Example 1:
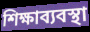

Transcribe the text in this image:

শিক্ষাব্যবস্থা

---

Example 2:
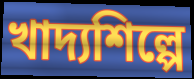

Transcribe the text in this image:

খাদ্যশিল্পে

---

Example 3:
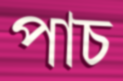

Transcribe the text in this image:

পাচ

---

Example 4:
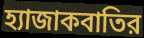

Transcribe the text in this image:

হ্যাজাকবাতির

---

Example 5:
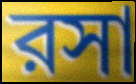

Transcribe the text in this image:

রসা